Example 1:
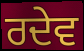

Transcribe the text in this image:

ਰਦੇਵ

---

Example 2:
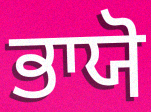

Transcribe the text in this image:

ਭਾਯੋ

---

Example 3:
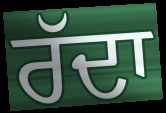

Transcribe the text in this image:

ਰੱਦਾ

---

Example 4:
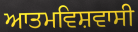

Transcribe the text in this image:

ਆਤਮਵਿਸ਼ਵਾਸੀ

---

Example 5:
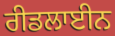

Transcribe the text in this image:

ਰੀਡਲਾਈਨ